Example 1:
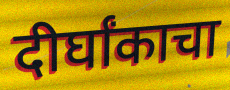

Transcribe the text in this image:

दीर्घांकाचा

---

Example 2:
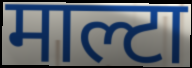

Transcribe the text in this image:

माल्टा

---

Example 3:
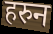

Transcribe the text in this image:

हरुन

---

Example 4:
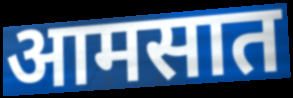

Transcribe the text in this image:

आमसात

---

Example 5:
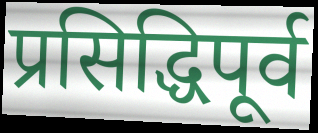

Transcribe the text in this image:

प्रसिद्धिपूर्व